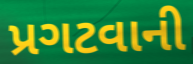
પ્રગટવાની